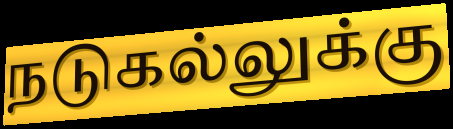
நடுகல்லுக்கு